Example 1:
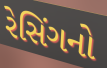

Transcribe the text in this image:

રેસિંગનો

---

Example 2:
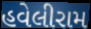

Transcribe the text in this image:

હવેલીરામ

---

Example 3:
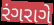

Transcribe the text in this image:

રંગરાગે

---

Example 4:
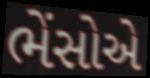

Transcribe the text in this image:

ભેંસોએ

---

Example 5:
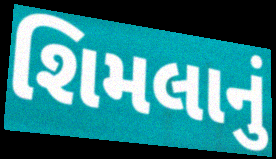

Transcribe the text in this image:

શિમલાનું